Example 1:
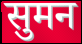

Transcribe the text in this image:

सुमन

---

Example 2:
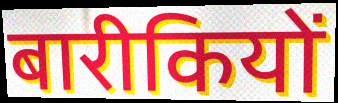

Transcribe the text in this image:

बारीकियों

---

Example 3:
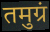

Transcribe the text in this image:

तमुग्रं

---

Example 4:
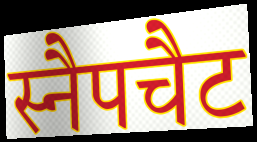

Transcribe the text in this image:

स्नैपचैट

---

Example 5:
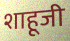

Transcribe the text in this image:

शाहूजी